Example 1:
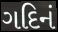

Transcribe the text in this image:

ગદિનં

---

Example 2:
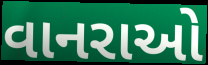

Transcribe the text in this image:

વાનરાઓ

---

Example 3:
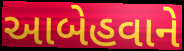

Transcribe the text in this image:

આબેહવાને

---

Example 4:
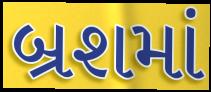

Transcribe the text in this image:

બ્રશમાં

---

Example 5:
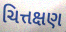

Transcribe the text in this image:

ચિત્તક્ષણ